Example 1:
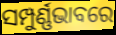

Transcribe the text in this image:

ସମ୍ପୁର୍ଣ୍ଣଭାବରେ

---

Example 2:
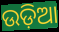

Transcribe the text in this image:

ଉଡ଼ିଆ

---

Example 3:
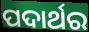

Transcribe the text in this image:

ପଦାର୍ଥର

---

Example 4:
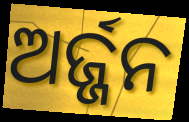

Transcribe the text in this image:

ଅର୍ଜ୍ଜନ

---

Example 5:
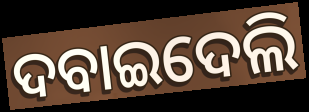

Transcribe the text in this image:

ଦବାଇଦେଲି